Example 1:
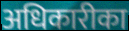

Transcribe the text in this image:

अधिकारीका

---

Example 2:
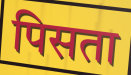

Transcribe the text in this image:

पिसता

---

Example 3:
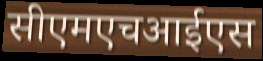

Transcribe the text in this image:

सीएमएचआईएस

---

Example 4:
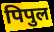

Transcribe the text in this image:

पिपुल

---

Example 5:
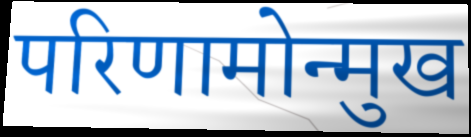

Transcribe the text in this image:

परिणामोन्मुख